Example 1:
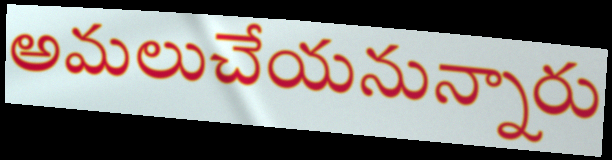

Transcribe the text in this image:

అమలుచేయనున్నారు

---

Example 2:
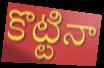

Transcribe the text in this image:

కొట్టినా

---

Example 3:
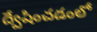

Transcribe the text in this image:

ద్వేషించడంలో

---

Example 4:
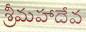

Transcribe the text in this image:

శ్రీమహాదేవ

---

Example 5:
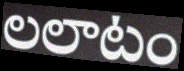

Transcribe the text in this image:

లలాటం